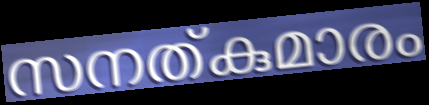
സനത്കുമാരം